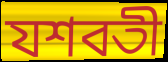
যশবতী